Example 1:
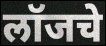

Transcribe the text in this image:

लॉजचे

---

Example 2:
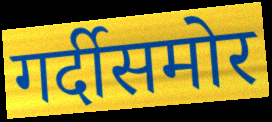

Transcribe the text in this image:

गर्दीसमोर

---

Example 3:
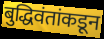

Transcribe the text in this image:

बुद्धिवंतांकडून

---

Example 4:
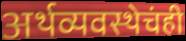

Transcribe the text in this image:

अर्थव्यवस्थेचंही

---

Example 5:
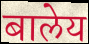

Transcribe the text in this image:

बालेय